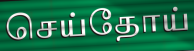
செய்தோய்